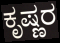
ಕೃಷ್ಣರ